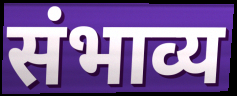
संभाव्य